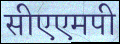
सीएएमपी